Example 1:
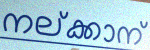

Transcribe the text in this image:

നല്ക്കാന്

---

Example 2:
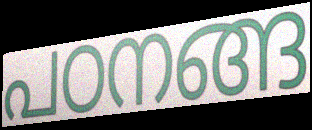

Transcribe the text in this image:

പഠനങ്ങ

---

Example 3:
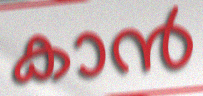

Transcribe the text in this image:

കാൻ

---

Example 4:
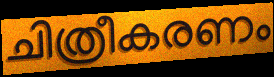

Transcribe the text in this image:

ചിത്രീകരണം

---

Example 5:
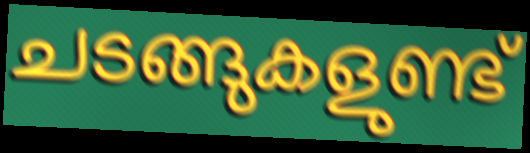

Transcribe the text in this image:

ചടങ്ങുകളുണ്ട്